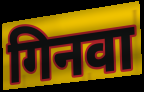
गिनवा